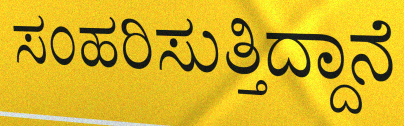
ಸಂಹರಿಸುತ್ತಿದ್ದಾನೆ